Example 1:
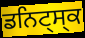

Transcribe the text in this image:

ਡਨਿਟ੍ਸ੍ਕ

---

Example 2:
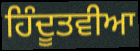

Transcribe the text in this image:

ਹਿੰਦੂਤਵੀਆ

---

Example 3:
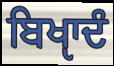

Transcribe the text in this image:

ਬਿਖੵਾਦੰ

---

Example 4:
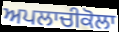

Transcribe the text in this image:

ਅਪਲਾਚੀਕੋਲਾ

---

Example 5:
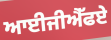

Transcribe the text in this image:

ਆਈਜੀਐੱਫਏ